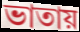
ভাতায়